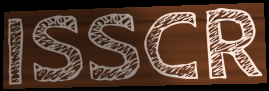
ISSCR